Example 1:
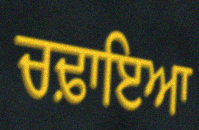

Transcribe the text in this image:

ਚਢ਼ਾਇਆ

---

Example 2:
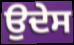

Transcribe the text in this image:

ਉਦੇਸ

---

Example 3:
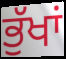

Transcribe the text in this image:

ਭੁੱਖਾਂ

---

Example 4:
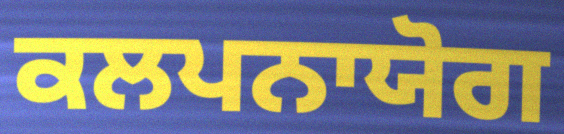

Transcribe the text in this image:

ਕਲਪਨਾਯੋਗ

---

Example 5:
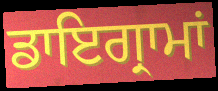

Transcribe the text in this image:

ਡਾਇਗ੍ਰਾਮਾਂ